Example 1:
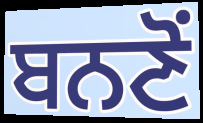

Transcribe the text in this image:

ਬਨਣੋਂ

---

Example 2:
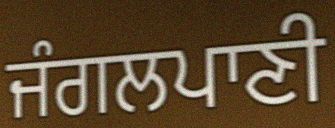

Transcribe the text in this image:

ਜੰਗਲਪਾਣੀ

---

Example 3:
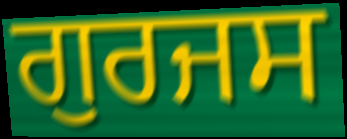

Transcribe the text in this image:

ਗੁਰਜਸ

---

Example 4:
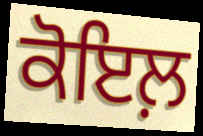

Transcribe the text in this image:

ਕੋਇਲ਼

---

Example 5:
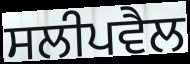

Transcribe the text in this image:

ਸਲੀਪਵੈਲ